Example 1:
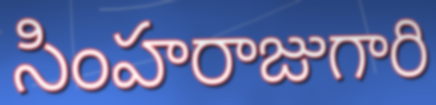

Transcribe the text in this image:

సింహరాజుగారి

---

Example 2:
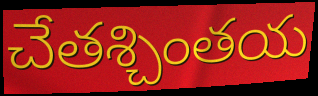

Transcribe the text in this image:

చేతశ్చింతయ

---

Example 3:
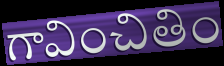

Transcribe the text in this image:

గావించితిం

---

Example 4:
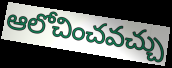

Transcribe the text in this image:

ఆలోచించవచ్చు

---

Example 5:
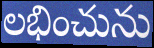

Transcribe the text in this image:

లభించును